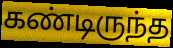
கண்டிருந்த